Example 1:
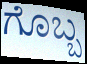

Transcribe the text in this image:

ಗೊಬ್ಬ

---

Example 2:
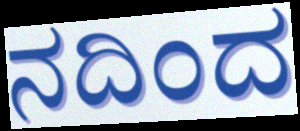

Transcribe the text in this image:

ನದಿಂದ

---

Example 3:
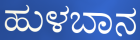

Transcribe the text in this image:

ಹುಳಬಾನ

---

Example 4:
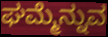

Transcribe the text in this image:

ಘಮ್ಮೆನ್ನುವ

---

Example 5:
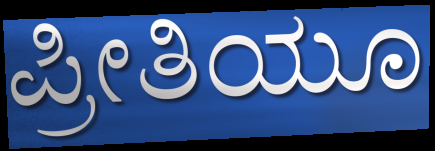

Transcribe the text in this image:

ಪ್ರೀತಿಯೂ